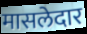
मासलेदार